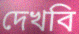
দেখবি